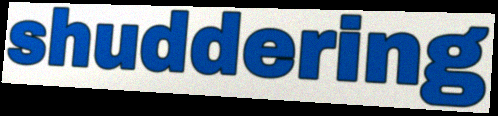
shuddering